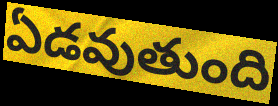
ఏడవుతుంది